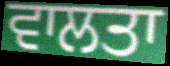
ਵਾਲਤਾ